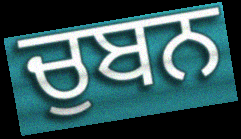
ਚੁਬਨ